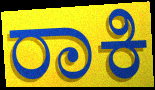
ರಾಕಿ